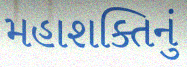
મહાશક્તિનું